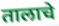
तालाचे